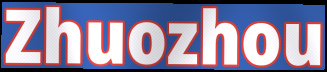
Zhuozhou